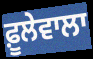
ਫ਼ੂਲੇਵਾਲਾ